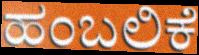
ಹಂಬಲಿಕೆ